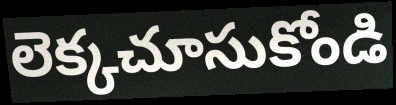
లెక్కచూసుకోండి